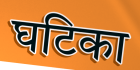
घटिका